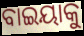
ବାଇୟାକୁ